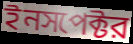
ইনসপেক্টর